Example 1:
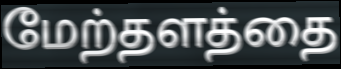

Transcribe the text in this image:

மேற்தளத்தை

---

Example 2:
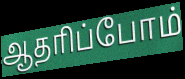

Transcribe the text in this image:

ஆதரிப்போம்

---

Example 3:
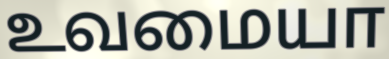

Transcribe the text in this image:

உவமையா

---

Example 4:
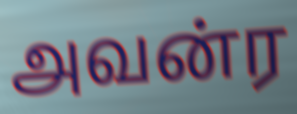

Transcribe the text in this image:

அவன்ர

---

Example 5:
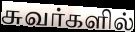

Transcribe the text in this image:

சுவர்களில்